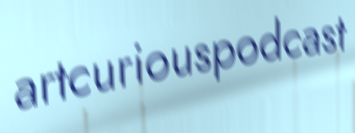
artcuriouspodcast